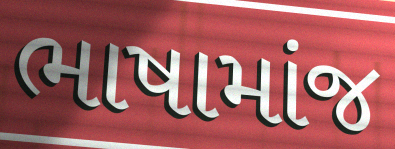
ભાષામાંજ